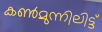
കൺമുന്നിലിട്ട്